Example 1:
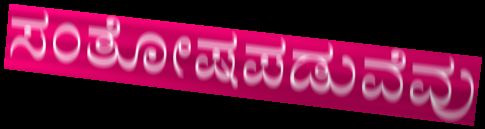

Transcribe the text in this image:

ಸಂತೋಷಪಡುವೆವು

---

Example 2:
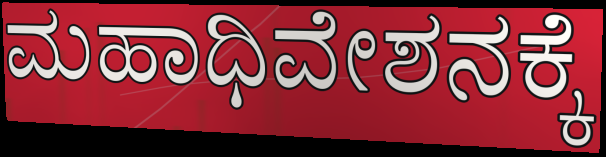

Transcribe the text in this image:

ಮಹಾಧಿವೇಶನಕ್ಕೆ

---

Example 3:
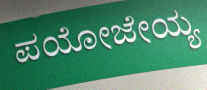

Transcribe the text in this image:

ಪಯೋಜೇಯ್ಯ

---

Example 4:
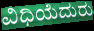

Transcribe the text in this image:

ವಿಧಿಯೆದುರು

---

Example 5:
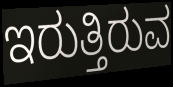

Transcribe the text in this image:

ಇರುತ್ತಿರುವ